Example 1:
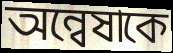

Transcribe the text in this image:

অন্বেষাকে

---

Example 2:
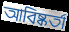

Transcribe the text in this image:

আবিষ্কর্তা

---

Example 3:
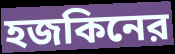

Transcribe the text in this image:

হজকিনের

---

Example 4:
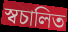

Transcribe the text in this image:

স্বচালিত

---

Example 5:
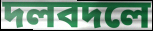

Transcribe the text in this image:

দলবদলে